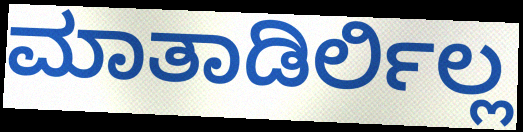
ಮಾತಾಡಿರ್ಲಿಲ್ಲ